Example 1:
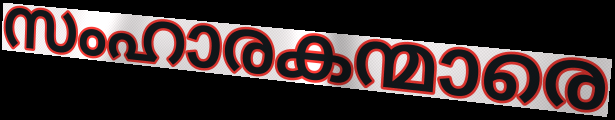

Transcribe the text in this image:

സംഹാരകന്മാരെ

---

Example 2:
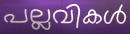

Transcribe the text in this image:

പല്ലവികൾ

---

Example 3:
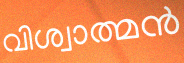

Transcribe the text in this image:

വിശ്വാത്മൻ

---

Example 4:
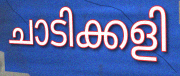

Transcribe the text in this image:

ചാടിക്കളി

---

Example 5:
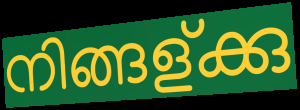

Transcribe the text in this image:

നിങ്ങള്ക്കു